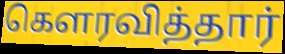
கௌரவித்தார்